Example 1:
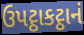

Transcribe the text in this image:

ઉપટ્ઠાકટ્ઠાનં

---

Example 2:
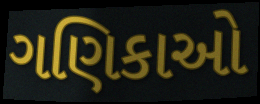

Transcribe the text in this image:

ગણિકાઓ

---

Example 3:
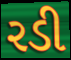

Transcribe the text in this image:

રડી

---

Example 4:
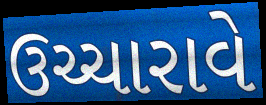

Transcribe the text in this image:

ઉચ્ચારાવે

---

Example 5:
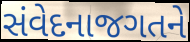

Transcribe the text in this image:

સંવેદનાજગતને